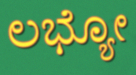
ಲಭ್ಯೋ